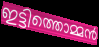
ഇട്ടിത്തൊമ്മൻ